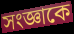
সংজ্ঞাকে